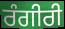
ਰੰਗੀਰੀ